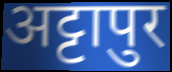
अट्टापुर